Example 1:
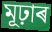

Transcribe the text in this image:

মূঢ়াৰ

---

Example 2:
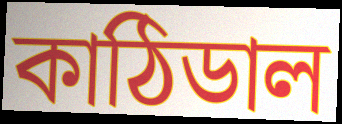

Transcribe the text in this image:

কাঠিডাল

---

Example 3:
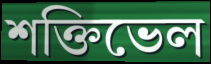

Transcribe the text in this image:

শক্তিভেল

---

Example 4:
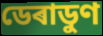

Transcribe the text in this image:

ডেৰাডুণ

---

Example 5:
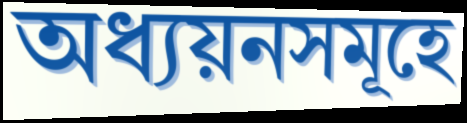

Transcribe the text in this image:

অধ্যয়নসমূহে